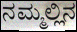
ನಮ್ಮಲ್ಲಿನ